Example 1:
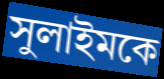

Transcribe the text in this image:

সুলাইমকে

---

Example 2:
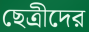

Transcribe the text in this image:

ছেত্রীদের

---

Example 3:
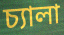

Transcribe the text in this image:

চ্যালা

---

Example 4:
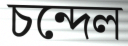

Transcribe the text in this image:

চন্দেল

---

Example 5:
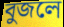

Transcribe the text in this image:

বুজলে